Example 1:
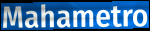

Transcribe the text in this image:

Mahametro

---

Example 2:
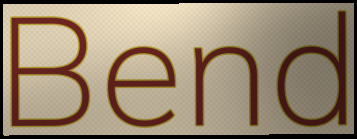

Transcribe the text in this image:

Bend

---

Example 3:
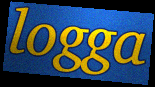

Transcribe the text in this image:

logga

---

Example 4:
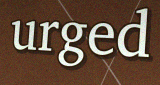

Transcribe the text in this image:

urged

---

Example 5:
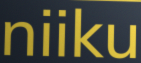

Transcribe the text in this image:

niiku